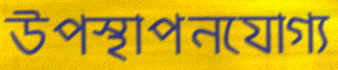
উপস্থাপনযোগ্য